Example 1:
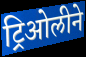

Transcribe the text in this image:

ट्रिओलीने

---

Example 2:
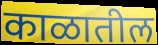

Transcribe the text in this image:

काळातील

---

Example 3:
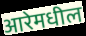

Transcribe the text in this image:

आरेमधील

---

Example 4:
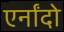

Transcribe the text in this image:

एर्नांदो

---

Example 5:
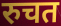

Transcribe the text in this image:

रुचत